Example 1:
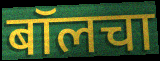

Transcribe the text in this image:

बॉलचा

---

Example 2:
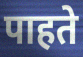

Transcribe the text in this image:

पाहते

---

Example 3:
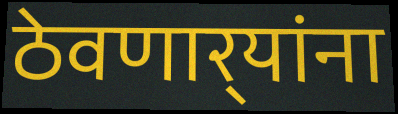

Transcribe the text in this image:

ठेवणार्‍यांना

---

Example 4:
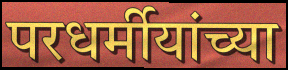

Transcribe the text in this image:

परधर्मीयांच्या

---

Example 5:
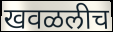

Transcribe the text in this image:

खवळलीच